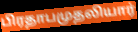
பிரதாபமுதலியார்